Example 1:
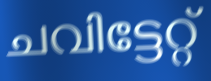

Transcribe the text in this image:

ചവിട്ടേറ്റ്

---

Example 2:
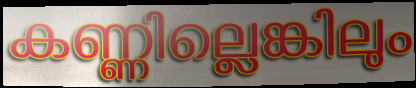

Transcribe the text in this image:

കണ്ണില്ലെങ്കിലും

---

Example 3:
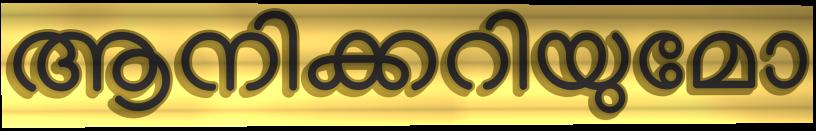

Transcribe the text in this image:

ആനിക്കറിയുമോ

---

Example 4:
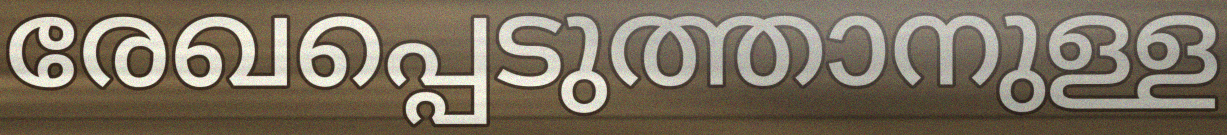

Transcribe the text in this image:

രേഖപ്പെടുത്താനുള്ള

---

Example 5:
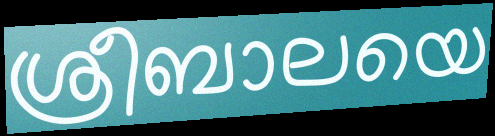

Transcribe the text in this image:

ശ്രീബാലയെ